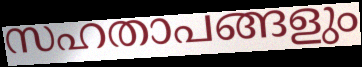
സഹതാപങ്ങളും